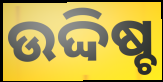
ଉଦ୍ଦିଷ୍ଚ